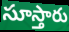
సూస్తారు